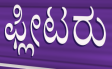
ಫ್ಲೀಟರು